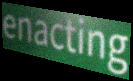
enacting